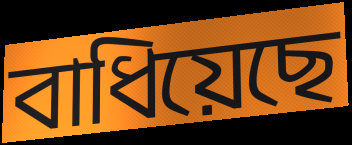
বাধিয়েছে